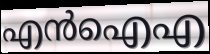
എൻഐഎ